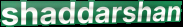
shaddarshan